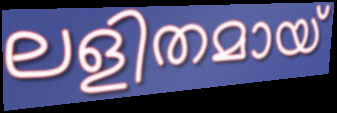
ലളിതമായ്